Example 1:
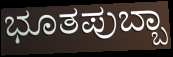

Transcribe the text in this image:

ಭೂತಪುಬ್ಬಾ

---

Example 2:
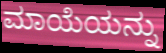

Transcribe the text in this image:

ಮಾಯೆಯನ್ನು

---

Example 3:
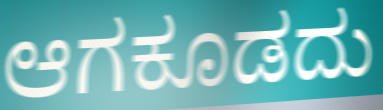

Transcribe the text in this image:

ಆಗಕೂಡದು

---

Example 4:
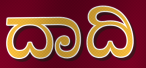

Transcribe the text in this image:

ದಾದಿ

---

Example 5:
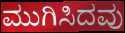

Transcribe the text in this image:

ಮುಗಿಸಿದವು